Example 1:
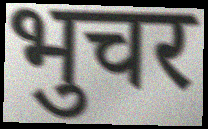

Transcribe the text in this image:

भुचर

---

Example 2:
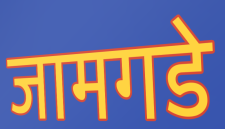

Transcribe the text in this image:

जामगडे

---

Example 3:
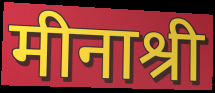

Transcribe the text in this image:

मीनाश्री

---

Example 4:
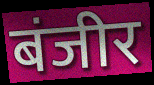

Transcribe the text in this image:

बंजीर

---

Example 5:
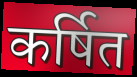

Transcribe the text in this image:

कर्षित